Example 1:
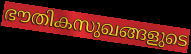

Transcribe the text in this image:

ഭൗതികസുഖങ്ങളുടെ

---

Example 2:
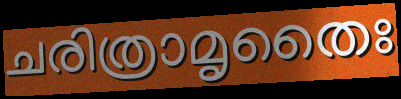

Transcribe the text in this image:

ചരിത്രാമൃതൈഃ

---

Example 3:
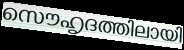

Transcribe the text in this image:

സൌഹൃദത്തിലായി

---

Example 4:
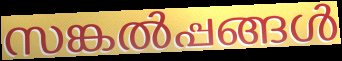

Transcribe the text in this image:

സങ്കൽപ്പങ്ങൾ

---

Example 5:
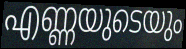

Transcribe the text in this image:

എണ്ണയുടെയും